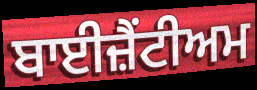
ਬਾਈਜ਼ੈਂਟੀਅਮ